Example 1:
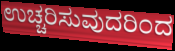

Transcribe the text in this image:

ಉಚ್ಚರಿಸುವುದರಿಂದ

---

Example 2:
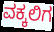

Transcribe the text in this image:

ವಕ್ಕಲಿಗ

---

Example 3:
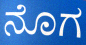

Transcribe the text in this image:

ನೊಗ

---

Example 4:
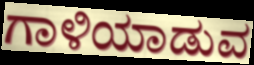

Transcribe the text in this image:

ಗಾಳಿಯಾಡುವ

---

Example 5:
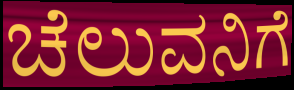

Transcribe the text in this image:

ಚೆಲುವನಿಗೆ